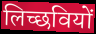
लिच्छवियों